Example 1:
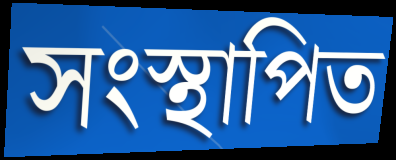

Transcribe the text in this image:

সংস্থাপিত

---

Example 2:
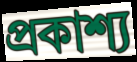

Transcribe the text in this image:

প্ৰকাশ্য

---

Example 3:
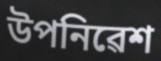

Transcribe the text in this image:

উপনিৱেশ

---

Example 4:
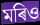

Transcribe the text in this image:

মৰিও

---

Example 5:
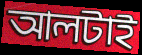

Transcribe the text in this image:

আলটাই